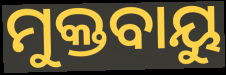
ମୁକ୍ତବାୟୁ